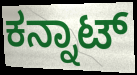
ಕನ್ನಾಟ್